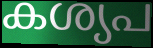
കശ്യപ